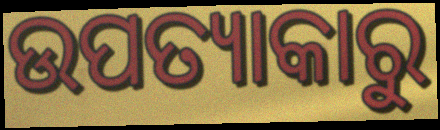
ଉପତ୍ୟାକାରୁ